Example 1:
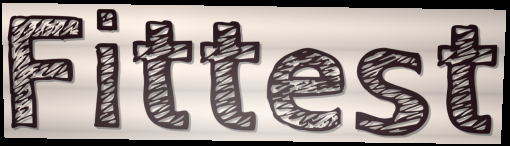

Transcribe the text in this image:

Fittest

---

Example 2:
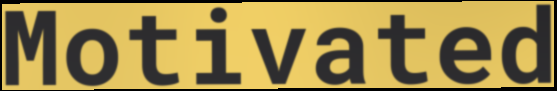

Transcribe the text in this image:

Motivated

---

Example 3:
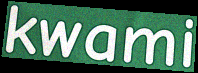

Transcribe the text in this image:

kwami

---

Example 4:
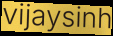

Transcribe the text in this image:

vijaysinh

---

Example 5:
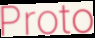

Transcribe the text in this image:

Proto